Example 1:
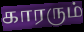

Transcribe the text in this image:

காரரும்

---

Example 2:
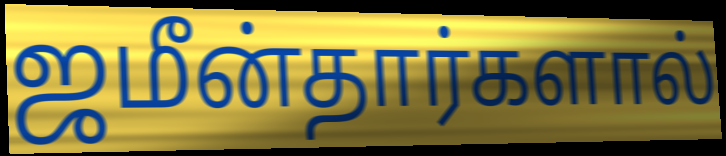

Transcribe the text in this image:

ஜமீன்தார்களால்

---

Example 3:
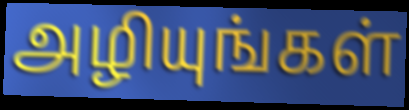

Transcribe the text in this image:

அழியுங்கள்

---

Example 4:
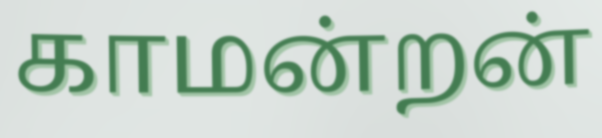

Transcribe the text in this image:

காமன்றன்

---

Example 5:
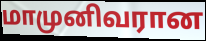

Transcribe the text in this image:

மாமுனிவரான